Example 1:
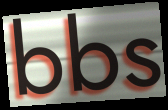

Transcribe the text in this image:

bbs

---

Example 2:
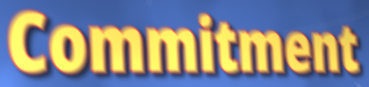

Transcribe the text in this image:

Commitment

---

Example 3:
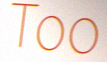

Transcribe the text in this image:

Too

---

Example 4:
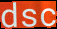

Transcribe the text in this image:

dsc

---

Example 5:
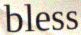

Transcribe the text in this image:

bless